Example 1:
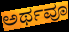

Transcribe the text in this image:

ಅರ್ಥವೂ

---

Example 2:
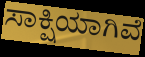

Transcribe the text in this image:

ಸಾಕ್ಷಿಯಾಗಿವೆ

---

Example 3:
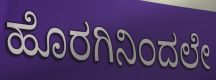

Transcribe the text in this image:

ಹೊರಗಿನಿಂದಲೇ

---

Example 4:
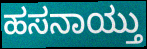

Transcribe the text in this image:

ಹಸನಾಯ್ತು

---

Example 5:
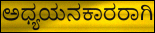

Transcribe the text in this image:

ಅಧ್ಯಯನಕಾರರಾಗಿ